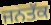
ਜਨਤੱਕ